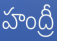
హంద్రీ